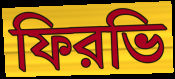
ফিরভি